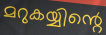
മറുകയ്യിന്റെ